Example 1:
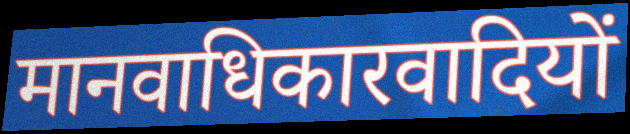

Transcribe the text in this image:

मानवाधिकारवादियों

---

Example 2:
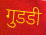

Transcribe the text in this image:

गुडडी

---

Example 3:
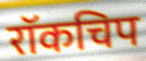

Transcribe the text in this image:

रॉकचिप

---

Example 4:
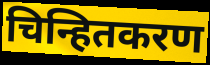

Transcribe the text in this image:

चिन्हितकरण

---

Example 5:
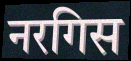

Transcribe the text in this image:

नरगिस